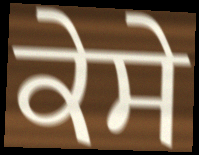
ਕੇਸੇ